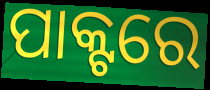
ପାକ୍ଟରେ